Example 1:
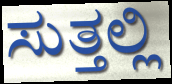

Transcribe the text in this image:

ಸುತ್ತಲ್ಲಿ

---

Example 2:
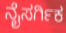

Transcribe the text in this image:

ನೈಸರ್ಗಿಕ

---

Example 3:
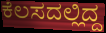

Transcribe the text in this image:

ಕೆಲಸದಲ್ಲಿದ್ದ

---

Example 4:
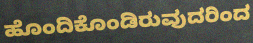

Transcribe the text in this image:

ಹೊಂದಿಕೊಂಡಿರುವುದರಿಂದ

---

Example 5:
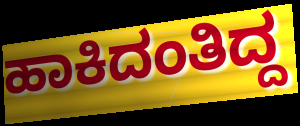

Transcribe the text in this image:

ಹಾಕಿದಂತಿದ್ದ